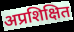
अप्रशिक्षित